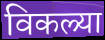
विकल्या